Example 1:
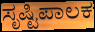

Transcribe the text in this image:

ಸೃಷ್ಟಿಪಾಲಕ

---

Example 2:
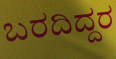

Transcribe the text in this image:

ಬರದಿದ್ದರ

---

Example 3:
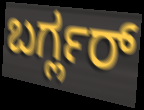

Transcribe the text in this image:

ಬರ್ಗ್ಲರ್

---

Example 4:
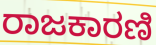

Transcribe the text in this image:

ರಾಜಕಾರಣಿ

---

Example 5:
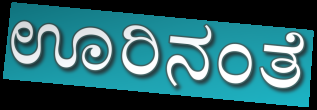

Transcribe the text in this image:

ಊರಿನಂತೆ